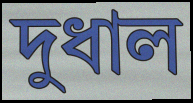
দুধাল